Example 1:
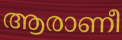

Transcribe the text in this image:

ആരാണീ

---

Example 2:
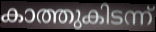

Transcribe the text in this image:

കാത്തുകിടന്ന്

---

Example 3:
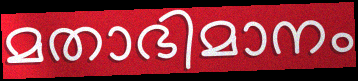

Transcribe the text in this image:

മതാഭിമാനം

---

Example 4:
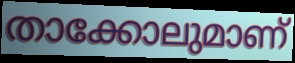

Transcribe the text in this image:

താക്കോലുമാണ്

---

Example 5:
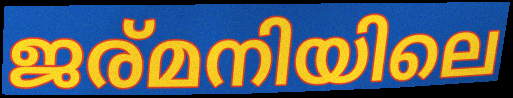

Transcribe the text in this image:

ജര്മനിയിലെ